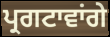
ਪ੍ਰਗਟਾਵਾਂਗੇ